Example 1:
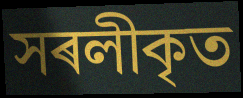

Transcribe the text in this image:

সৰলীকৃত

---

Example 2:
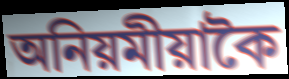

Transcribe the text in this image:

অনিয়মীয়াকৈ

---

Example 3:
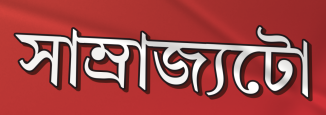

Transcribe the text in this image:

সাম্ৰাজ্যটো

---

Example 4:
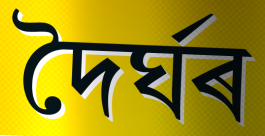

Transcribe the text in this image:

দৈৰ্ঘৰ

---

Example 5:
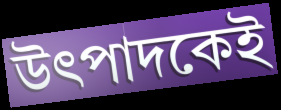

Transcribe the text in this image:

উৎপাদকেই